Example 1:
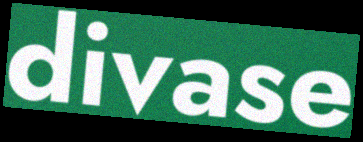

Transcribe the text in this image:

divase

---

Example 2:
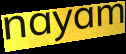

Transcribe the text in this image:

nayam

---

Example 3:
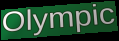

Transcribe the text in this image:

Olympic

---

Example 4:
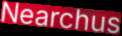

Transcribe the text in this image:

Nearchus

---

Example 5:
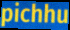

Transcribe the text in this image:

pichhu